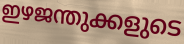
ഇഴജന്തുക്കളുടെ